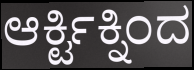
ಆರ್ಕ್ಟಿಕ್ನಿಂದ